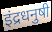
इंद्रधनुषी